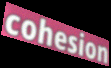
cohesion